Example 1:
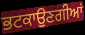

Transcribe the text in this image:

ਭਟਕਾਉਣਗੀਆਂ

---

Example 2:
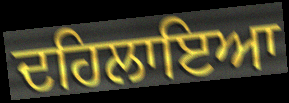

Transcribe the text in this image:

ਦਹਿਲਾਇਆ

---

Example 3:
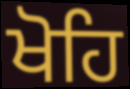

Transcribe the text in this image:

ਖੋਹਿ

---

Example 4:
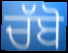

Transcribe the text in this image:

ਚੱਬੋ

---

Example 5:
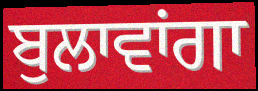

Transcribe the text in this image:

ਬੁਲਾਵਾਂਗਾ